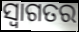
ସ୍ଵାଗତର